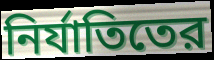
নির্যাতিতের